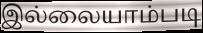
இல்லையாம்படி